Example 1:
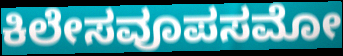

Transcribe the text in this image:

ಕಿಲೇಸವೂಪಸಮೋ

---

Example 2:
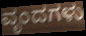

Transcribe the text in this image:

ವೃಂದಗಳು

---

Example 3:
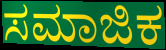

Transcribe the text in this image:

ಸಮಾಜಿಕ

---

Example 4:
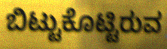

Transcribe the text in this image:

ಬಿಟ್ಟುಕೊಟ್ಟಿರುವ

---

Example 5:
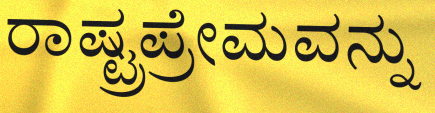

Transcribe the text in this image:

ರಾಷ್ಟ್ರಪ್ರೇಮವನ್ನು